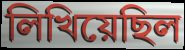
লিখিয়েছিল